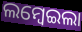
ଲମ୍ବେଇଲା